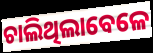
ଚାଲିଥିଲାବେଳେ